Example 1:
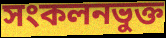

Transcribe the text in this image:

সংকলনভুক্ত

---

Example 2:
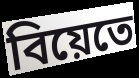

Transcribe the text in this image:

বিয়েতে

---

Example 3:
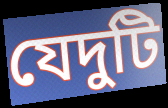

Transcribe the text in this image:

যেদুটি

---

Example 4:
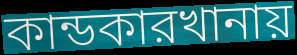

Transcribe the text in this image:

কান্ডকারখানায়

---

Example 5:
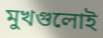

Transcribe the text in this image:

মুখগুলোই